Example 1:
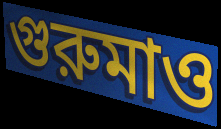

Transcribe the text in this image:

গুরুমাও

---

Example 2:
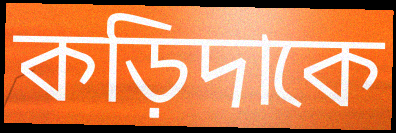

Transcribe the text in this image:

কড়িদাকে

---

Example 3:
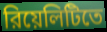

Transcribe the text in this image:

রিয়েলিটিতে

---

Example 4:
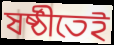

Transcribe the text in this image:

ষষ্ঠীতেই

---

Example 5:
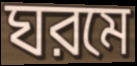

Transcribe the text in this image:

ঘরমে